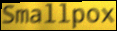
Smallpox